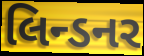
લિન્ડનર